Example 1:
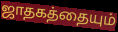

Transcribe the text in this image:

ஜாதகத்தையும்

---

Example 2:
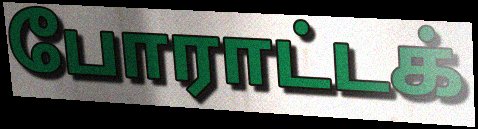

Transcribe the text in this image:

போராட்டக்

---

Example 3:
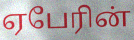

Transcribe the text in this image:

ஏபேரின்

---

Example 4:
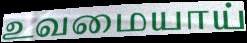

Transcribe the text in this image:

உவமையாய்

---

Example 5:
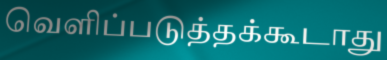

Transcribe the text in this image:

வெளிப்படுத்தக்கூடாது